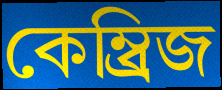
কেম্ব্ৰিজ